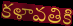
కళావతికి